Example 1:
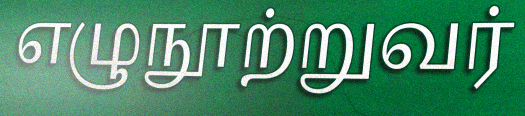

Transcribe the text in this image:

எழுநூற்றுவர்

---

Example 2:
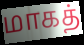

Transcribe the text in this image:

மாகத்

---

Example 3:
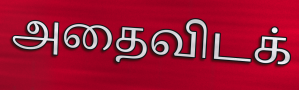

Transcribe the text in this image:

அதைவிடக்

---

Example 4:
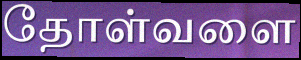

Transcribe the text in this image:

தோள்வளை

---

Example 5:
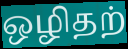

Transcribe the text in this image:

ஒழிதற்